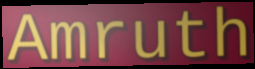
Amruth